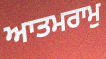
ਆਤਮਰਾਮੁ